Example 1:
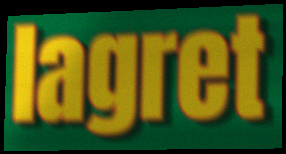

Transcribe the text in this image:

lagret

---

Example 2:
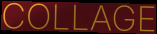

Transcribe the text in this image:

COLLAGE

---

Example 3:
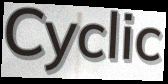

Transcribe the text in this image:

Cyclic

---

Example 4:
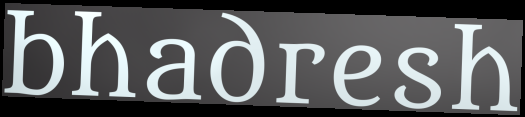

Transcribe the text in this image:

bhadresh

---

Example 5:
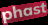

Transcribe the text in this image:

phast